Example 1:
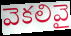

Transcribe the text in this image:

వెకలివై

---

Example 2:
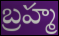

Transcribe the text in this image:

బ్రహ్మ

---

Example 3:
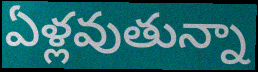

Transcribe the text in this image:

ఏళ్లవుతున్నా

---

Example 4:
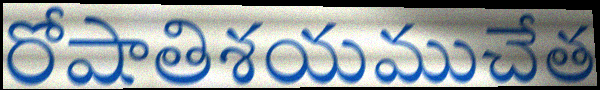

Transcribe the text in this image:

రోషాతిశయముచేత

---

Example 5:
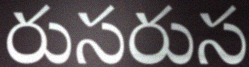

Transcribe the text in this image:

రుసరుస